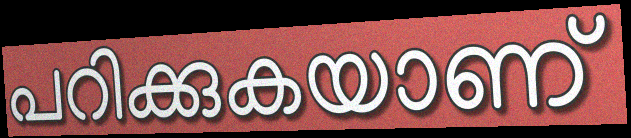
പറിക്കുകയാണ്